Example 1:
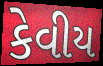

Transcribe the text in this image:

કેવીય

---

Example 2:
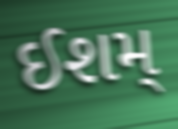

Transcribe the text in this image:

ઈશમ્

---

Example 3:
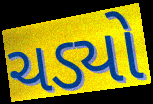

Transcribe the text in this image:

ચડ્યો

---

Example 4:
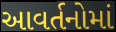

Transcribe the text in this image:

આવર્તનોમાં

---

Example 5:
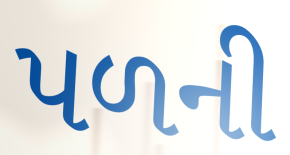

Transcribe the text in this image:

પળની